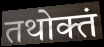
तथोक्तं